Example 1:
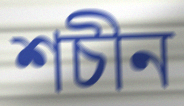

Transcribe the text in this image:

শচীন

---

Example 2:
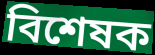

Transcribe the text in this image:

বিশেষক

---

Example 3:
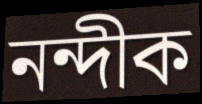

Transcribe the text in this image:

নন্দীক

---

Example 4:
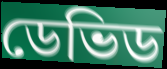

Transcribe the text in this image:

ডেভিড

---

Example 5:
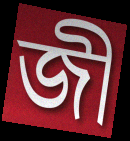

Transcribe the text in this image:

জী